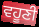
ਵਹੂਣੀ